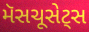
મૅસચૂસેટ્સ